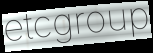
etcgroup